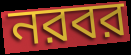
নরবর